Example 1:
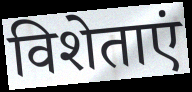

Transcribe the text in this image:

विशेताएं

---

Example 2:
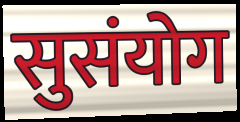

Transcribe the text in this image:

सुसंयोग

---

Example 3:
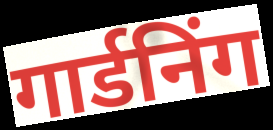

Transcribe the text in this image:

गार्डनिंग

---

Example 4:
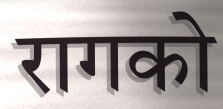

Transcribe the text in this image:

रागको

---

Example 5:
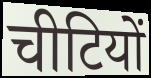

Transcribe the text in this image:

चीटियों